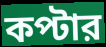
কপ্টার